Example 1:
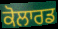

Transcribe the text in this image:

ਕੋਲਾਰਡ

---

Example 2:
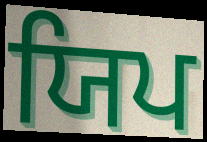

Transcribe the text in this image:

ਯਿਪ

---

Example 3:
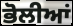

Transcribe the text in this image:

ਭੋਲੀਆਂ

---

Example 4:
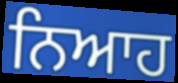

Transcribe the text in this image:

ਨਿਆਹ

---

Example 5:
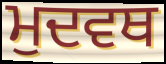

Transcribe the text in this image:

ਮੁਦਵਥ